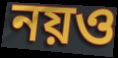
নয়ও